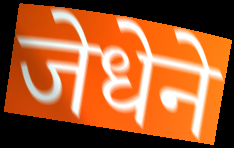
जेधेने